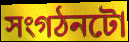
সংগঠনটো